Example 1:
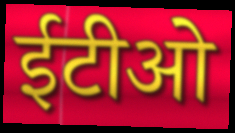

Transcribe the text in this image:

ईटीओ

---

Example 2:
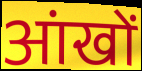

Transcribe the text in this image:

आंखों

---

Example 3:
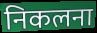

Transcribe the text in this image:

निकलना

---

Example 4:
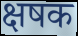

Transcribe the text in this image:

क्षषक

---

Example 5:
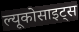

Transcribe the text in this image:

ल्यूकोसाइट्स